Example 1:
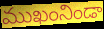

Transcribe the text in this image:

ముఖంనిండా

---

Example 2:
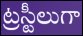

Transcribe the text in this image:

ట్రస్టీలుగా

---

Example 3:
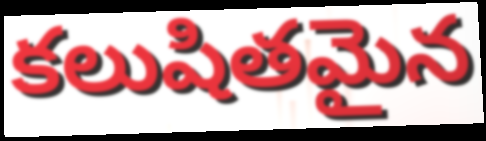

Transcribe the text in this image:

కలుషితమైన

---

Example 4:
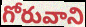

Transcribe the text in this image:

గోరువాని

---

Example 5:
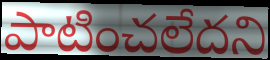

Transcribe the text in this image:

పాటించలేదని